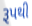
રૂપથી